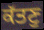
ਕੱਤਣੁ